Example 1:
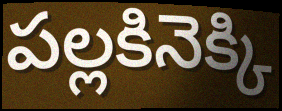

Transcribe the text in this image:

పల్లకినెక్కి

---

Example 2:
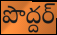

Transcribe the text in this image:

పొద్దర్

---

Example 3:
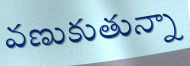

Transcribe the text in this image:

వణుకుతున్నా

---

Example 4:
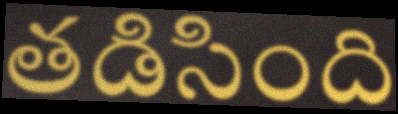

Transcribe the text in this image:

తడిసింది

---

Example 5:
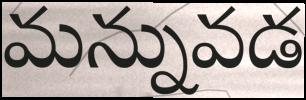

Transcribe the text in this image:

మన్నువడ